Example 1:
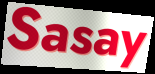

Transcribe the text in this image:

Sasay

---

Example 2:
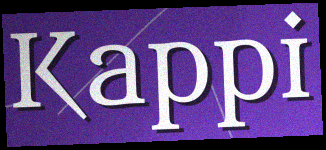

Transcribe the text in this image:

Kappi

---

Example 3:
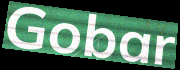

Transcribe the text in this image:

Gobar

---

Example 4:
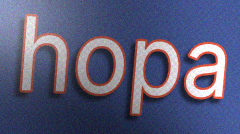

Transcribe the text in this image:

hopa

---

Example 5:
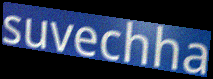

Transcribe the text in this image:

suvechha